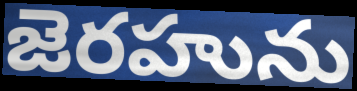
జెరహును